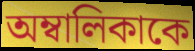
অম্বালিকাকে